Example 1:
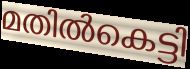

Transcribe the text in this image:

മതിൽകെട്ടി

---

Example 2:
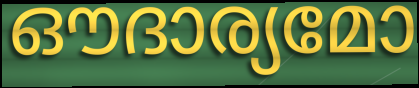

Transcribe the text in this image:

ഔദാര്യമോ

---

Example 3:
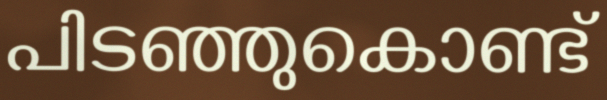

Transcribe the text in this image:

പിടഞ്ഞുകൊണ്ട്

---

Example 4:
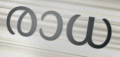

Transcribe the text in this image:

രാധ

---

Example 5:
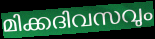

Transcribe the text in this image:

മിക്കദിവസവും